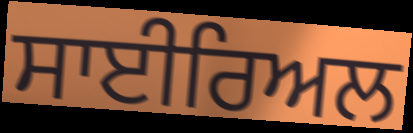
ਸਾਈਰਿਅਲ